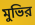
মুভির